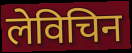
लेविचिन